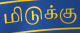
மிடுக்கு